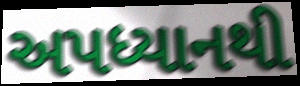
અપધ્યાનથી